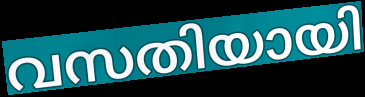
വസതിയായി